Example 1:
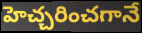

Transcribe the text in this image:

హెచ్చరించగానే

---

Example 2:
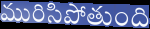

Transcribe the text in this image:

మురిసిపోతుంది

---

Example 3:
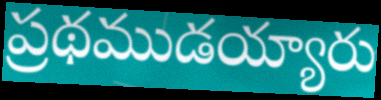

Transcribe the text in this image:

ప్రథముడయ్యారు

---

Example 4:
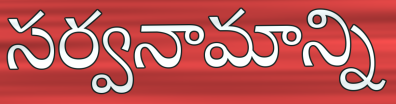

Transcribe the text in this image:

సర్వనామాన్ని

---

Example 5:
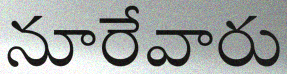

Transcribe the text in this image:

నూరేవారు